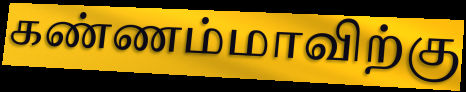
கண்ணம்மாவிற்கு